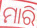
ମାରି